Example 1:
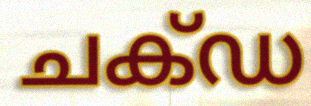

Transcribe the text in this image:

ചക്ഡ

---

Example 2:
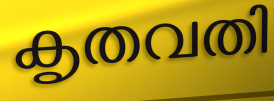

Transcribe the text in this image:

കൃതവതി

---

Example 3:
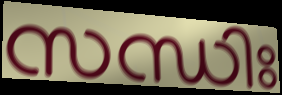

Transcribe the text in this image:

സന്ധിഃ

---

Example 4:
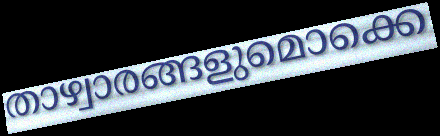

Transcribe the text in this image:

താഴ്വാരങ്ങളുമൊക്കെ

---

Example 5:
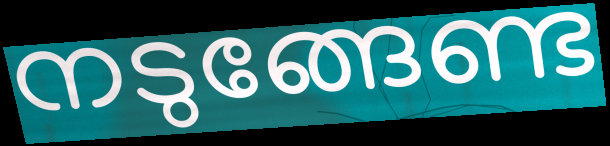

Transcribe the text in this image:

നടുങ്ങേണ്ട